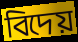
বিদেয়